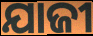
ଯାଜୀ